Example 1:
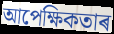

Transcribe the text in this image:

আপেক্ষিকতাৰ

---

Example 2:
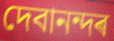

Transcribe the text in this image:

দেবানন্দৰ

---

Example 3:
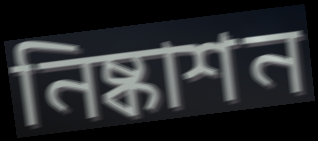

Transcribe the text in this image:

নিষ্কাশন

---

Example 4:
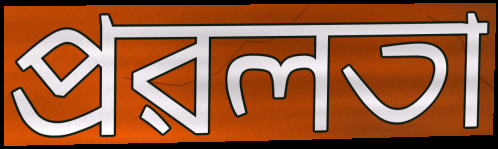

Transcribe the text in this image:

প্ৰৱলতা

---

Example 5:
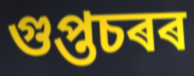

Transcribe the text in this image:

গুপ্তচৰৰ